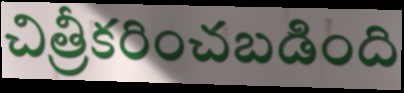
చిత్రీకరించబడింది